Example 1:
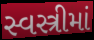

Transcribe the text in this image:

સ્વસ્ત્રીમાં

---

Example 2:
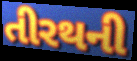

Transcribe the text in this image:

તીરથની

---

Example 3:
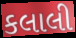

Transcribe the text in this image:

કલાલી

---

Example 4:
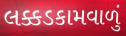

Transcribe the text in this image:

લક્કડકામવાળું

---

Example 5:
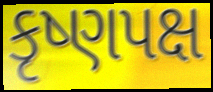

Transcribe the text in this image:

કૃષ્ણપક્ષ